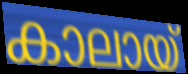
കാലായ്